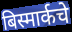
बिस्मार्कचे